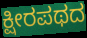
ಕ್ಷೀರಪಥದ